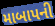
માબાપની